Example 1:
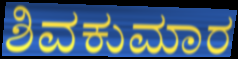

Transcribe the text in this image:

ಶಿವಕುಮಾರ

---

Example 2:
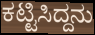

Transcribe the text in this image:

ಕಟ್ಟಿಸಿದ್ದನು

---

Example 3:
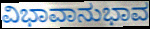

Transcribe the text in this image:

ವಿಭಾವಾನುಭಾವ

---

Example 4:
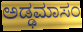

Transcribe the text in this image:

ಅಡ್ಢಮಾಸಂ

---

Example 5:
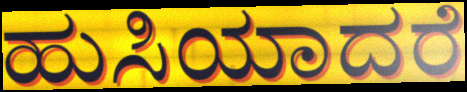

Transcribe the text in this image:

ಹುಸಿಯಾದರೆ